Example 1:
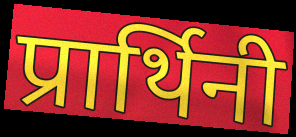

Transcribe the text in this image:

प्रार्थिनी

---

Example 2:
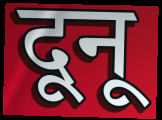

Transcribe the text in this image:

दूनू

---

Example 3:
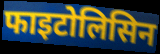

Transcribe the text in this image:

फाइटोलिसिन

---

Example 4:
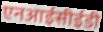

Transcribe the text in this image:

एनआईसीईडी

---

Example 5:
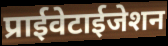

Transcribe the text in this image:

प्राईवेटाईजेशन